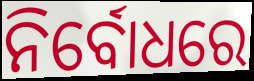
ନିର୍ବୋଧରେ